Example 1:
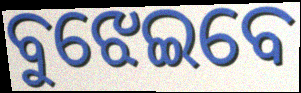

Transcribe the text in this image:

ବୁଝେଇବେ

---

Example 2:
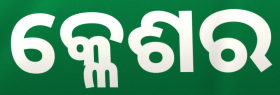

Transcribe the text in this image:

କ୍ଳେଶର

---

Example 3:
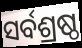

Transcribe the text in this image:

ସର୍ବଶ୍ରଷ୍ଠ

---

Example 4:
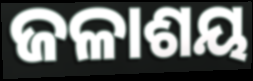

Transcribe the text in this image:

ଜଳାଶୟ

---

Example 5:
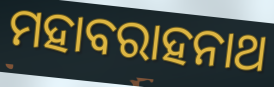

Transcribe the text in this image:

ମହାବରାହନାଥ